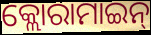
କ୍ଲୋରାମାଇନ୍